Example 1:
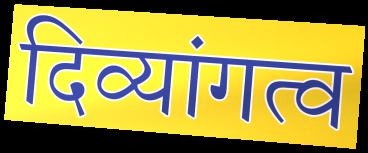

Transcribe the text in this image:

दिव्यांगत्व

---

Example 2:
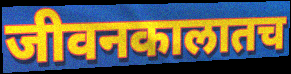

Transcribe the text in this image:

जीवनकालातच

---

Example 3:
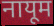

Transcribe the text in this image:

नायूम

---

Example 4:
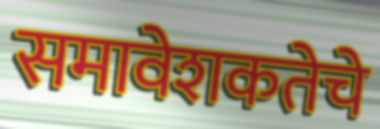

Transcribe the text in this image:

समावेशकतेचे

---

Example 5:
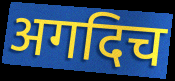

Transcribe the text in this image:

अगदिच